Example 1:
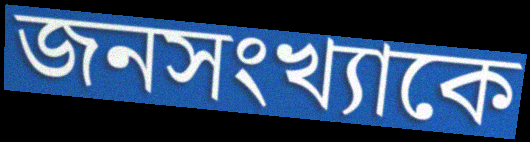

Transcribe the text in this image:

জনসংখ্যাকে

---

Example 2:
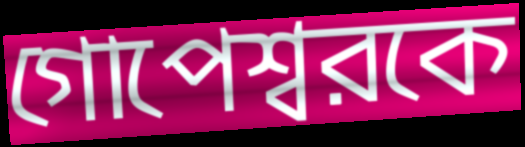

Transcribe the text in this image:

গোপেশ্বরকে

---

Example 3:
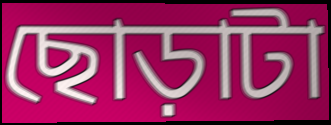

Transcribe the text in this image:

ছোড়াটা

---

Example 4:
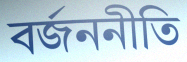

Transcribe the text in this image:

বর্জননীতি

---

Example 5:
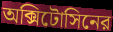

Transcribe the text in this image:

অক্সিটোসিনের